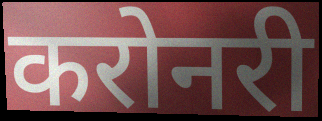
करोनरी